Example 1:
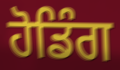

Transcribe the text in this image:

ਹੋਡਿੰਗ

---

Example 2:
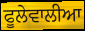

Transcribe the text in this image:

ਫੂਲੇਵਾਲੀਆ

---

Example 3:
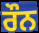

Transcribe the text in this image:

ਰੌਨ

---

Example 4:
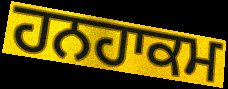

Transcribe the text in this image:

ਹਨਹਾਕਮ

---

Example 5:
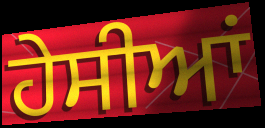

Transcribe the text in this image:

ਹੇਸੀਆਂ